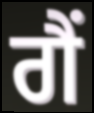
ਗੈਂ